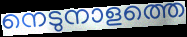
നെടുനാളത്തെ